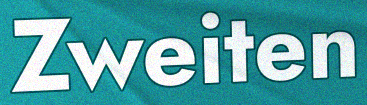
Zweiten